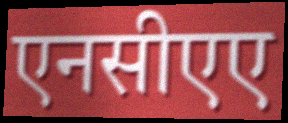
एनसीएए